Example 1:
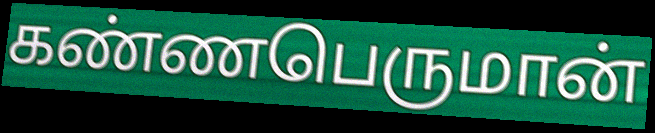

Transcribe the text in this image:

கண்ணபெருமான்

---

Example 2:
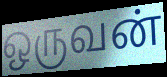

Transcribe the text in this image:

ஒருவன்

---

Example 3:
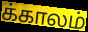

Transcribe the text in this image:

க்காலம்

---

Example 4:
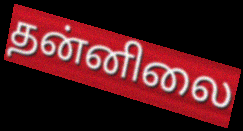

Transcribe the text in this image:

தன்னிலை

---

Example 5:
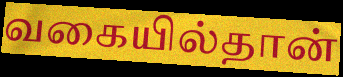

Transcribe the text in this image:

வகையில்தான்